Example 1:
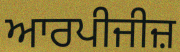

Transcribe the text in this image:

ਆਰਪੀਜੀਜ਼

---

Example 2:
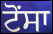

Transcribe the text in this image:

ਟੋਂਸਾ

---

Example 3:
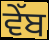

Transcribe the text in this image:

ਵੇੱਬ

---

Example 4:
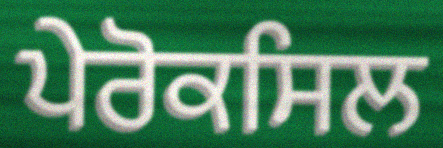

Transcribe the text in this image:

ਪੇਰੋਕਸਿਲ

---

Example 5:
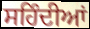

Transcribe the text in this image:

ਸਹਿੰਦੀਆਂ